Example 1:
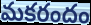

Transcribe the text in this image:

మకరందం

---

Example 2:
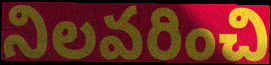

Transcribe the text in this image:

నిలవరించి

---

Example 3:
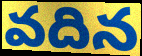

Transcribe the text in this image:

వదిన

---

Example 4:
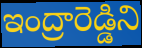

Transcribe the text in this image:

ఇంద్రారెడ్డిని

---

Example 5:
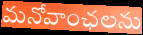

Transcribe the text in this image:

మనోవాంఛలను